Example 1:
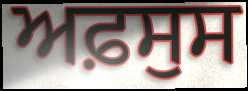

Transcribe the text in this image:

ਅਫ਼ਸੁਸ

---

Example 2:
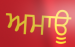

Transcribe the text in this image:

ਅਮਾਊ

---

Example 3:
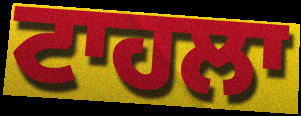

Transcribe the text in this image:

ਟਾਹਲਾ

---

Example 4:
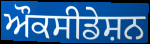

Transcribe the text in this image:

ਔਕਸੀਡੇਸ਼ਨ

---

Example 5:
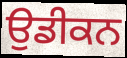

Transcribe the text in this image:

ਉਡੀਕਨ